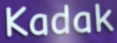
Kadak